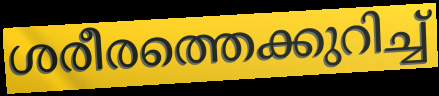
ശരീരത്തെക്കുറിച്ച്